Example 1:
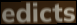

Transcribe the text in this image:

edicts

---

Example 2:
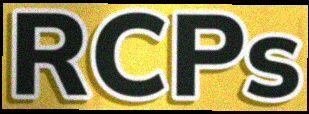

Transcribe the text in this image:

RCPs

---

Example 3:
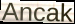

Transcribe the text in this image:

Ancak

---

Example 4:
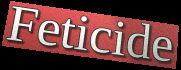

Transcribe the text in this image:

Feticide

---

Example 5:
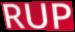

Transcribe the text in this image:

RUP